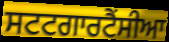
ਸਟਟਗਾਰਟੈਂਸੀਆ